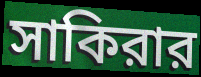
সাকিরার